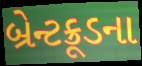
બ્રેન્ટક્રૂડના